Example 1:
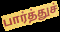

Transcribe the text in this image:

பார்த்துச்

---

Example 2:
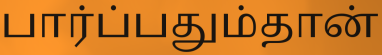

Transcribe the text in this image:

பார்ப்பதும்தான்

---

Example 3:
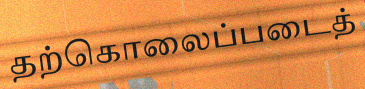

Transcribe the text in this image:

தற்கொலைப்படைத்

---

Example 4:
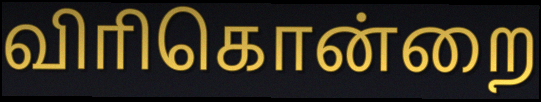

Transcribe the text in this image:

விரிகொன்றை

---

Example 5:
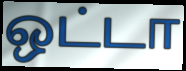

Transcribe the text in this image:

ஒட்டா